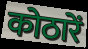
कोठारें